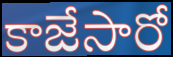
కాజేసారో